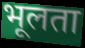
भूलता